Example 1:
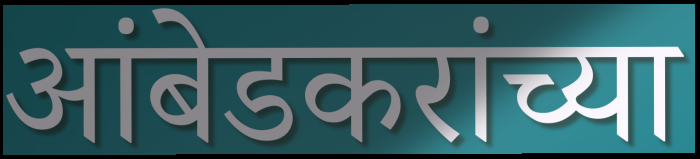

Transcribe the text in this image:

आंबेडकरांच्या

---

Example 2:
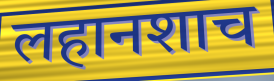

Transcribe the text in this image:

लहानशाच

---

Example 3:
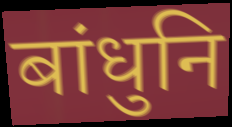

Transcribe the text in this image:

बांधुनि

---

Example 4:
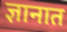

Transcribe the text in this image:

ज्ञानात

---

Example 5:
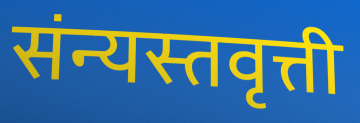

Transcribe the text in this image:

संन्यस्तवृत्ती